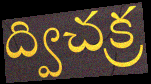
ద్విచక్ర